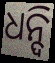
ଧନ୍ଦି